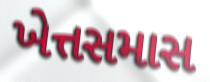
ખેત્તસમાસ